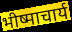
भीष्माचार्य